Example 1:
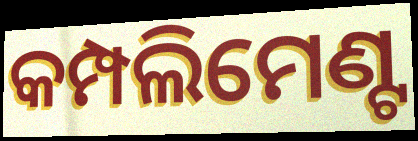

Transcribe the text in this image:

କମ୍ପଲିମେଣ୍ଟ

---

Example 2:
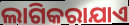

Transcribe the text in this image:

ଲାଗିକରାଯାଏ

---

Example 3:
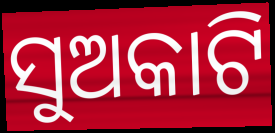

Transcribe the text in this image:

ସୁଅକାଟି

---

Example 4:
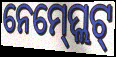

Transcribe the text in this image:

ନେମ୍‍ପ୍ଲେଟ୍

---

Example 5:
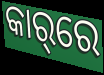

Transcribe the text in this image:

କାର୍‌ରେ